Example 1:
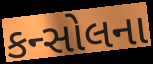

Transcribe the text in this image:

કન્સોલના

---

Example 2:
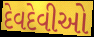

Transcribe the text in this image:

દેવદેવીઓ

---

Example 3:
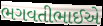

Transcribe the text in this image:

ભગવતીભાઈએ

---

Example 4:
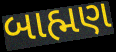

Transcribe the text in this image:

બાહ્મણ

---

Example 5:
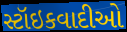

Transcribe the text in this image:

સ્ટૉઇકવાદીઓ